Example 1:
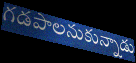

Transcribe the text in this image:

గడపాలనుకున్నాడు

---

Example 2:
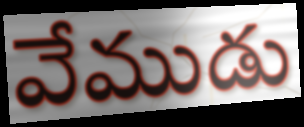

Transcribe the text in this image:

వేముడు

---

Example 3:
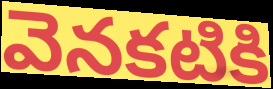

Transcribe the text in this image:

వెనకటికి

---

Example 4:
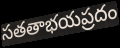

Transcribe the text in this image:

సతతాభయప్రదం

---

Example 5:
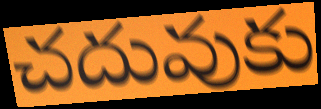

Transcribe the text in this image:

చదువుకు